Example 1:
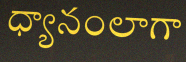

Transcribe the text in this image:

ధ్యానంలాగా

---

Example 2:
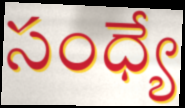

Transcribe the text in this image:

సంధ్యే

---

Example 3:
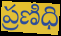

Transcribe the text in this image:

ప్రణిధి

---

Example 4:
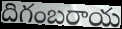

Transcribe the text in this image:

దిగంబరాయ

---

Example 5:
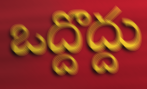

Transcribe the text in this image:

ఒద్దొద్దు